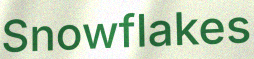
Snowflakes